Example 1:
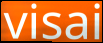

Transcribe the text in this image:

visai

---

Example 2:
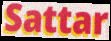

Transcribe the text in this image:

Sattar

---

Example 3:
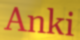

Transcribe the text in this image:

Anki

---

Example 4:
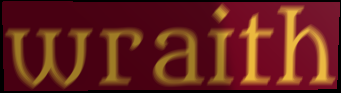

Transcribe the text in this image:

wraith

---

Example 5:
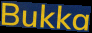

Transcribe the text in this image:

Bukka